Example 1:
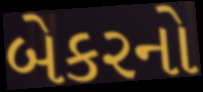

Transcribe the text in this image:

બેકરનો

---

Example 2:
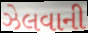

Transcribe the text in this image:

ઝેલવાની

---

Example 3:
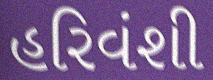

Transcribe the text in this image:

હરિવંશી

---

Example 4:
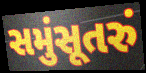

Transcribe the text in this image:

સમુંસૂતરું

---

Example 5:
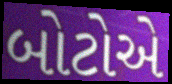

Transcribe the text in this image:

બોટોએ